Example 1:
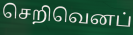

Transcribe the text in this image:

செறிவெனப்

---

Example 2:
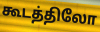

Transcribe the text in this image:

கூடத்திலோ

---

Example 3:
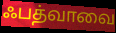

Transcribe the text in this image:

ஃபத்வாவை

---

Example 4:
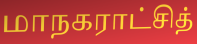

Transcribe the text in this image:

மாநகராட்சித்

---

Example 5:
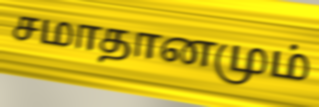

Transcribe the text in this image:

சமாதானமும்